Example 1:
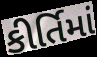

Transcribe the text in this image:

કીર્તિમાં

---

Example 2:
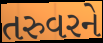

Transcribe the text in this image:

તરુવરને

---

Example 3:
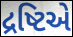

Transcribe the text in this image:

દ્રષ્ટિએ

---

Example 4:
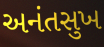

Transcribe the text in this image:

અનંતસુખ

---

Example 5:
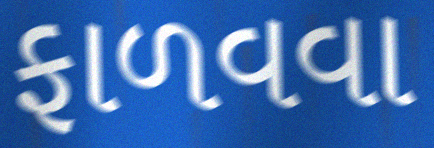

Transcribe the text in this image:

ફાળવવા